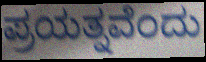
ಪ್ರಯತ್ನವೆಂದು